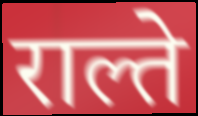
राल्ते